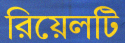
রিয়েলটি